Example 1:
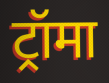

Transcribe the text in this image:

ट्रॉमा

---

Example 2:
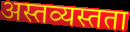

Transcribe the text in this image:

अस्तव्यस्तता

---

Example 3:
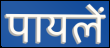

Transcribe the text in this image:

पायलें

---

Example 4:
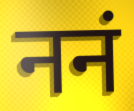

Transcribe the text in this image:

ननं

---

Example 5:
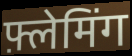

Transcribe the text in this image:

फ़्लेमिंग